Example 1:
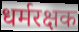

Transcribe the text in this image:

धर्मरक्षक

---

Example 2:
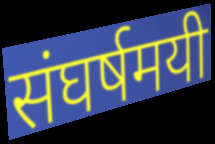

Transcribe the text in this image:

संघर्षमयी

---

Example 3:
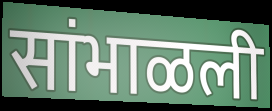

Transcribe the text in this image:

सांभाळली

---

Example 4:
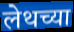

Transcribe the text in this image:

लेथच्या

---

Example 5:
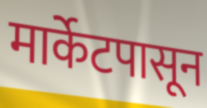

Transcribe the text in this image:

मार्केटपासून